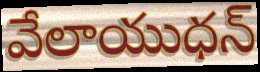
వేలాయుధన్